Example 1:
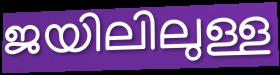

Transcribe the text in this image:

ജയിലിലുള്ള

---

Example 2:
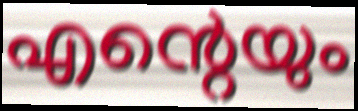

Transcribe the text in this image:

എന്റെയും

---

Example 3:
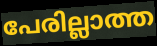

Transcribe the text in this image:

പേരില്ലാത്ത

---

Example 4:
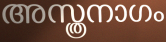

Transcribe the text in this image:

അസ്ത്രനാഗം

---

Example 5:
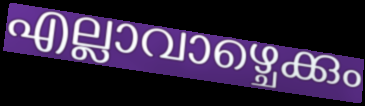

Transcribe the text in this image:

എല്ലാവാഴ്ചെക്കും